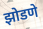
झोडणे